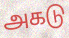
அகடு